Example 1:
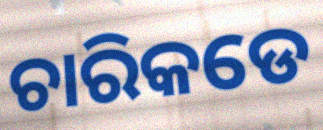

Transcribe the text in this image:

ଚାରିକଡେ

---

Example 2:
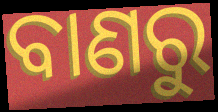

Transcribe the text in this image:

ବାଣରୁ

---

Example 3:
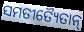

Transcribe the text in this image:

ସମତୀତ୍ୟୈତାନ୍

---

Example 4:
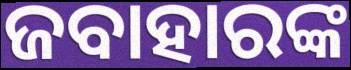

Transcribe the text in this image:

ଜବାହାରଙ୍କ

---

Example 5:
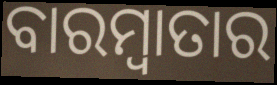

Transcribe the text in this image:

ବାରମ୍ବାତାର